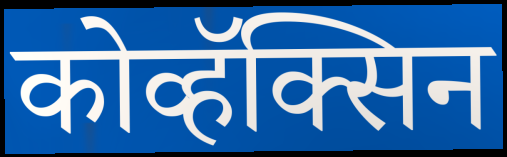
कोव्हॅक्सिन